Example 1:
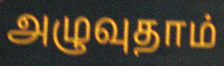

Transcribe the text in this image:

அழுவுதாம்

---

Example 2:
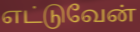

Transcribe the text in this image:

எட்டுவேன்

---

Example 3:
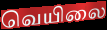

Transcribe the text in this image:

வெயிலை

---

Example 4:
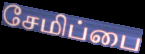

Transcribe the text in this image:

சேமிப்பை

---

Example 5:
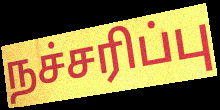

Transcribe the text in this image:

நச்சரிப்பு